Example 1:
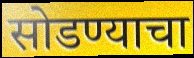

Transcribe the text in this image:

सोडण्याचा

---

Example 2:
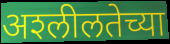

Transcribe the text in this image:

अश्‍लीलतेच्या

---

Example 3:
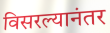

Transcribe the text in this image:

विसरल्यानंतर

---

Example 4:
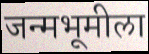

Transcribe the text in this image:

जन्मभूमीला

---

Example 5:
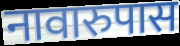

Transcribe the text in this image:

नावारुपास